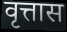
वृत्तास